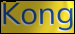
Kong